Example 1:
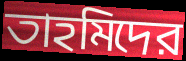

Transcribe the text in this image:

তাহমিদের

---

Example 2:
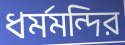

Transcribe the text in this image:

ধর্মমন্দির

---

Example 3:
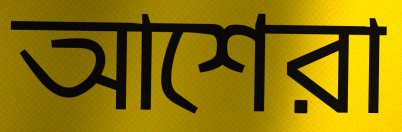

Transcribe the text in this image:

আশেরা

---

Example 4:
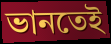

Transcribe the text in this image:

ভানতেই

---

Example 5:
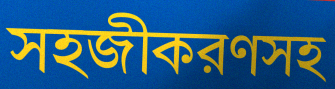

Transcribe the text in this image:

সহজীকরণসহ